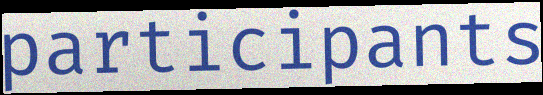
participants